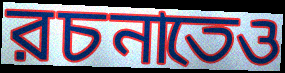
রচনাতেও